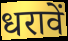
धरावें